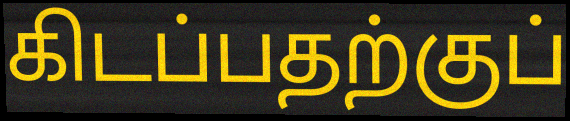
கிடப்பதற்குப்